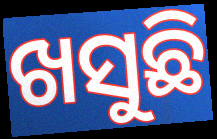
ଖସୁଛି